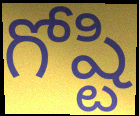
గోష్టి